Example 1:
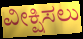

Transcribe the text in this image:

ವೀಕ್ಷಿಸಲು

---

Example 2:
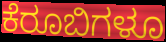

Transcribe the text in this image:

ಕೆರೂಬಿಗಳೂ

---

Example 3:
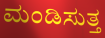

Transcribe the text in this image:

ಮಂಡಿಸುತ್ತ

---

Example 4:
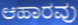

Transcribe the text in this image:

ಆಹಾರವು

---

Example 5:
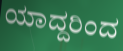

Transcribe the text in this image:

ಯಾದ್ದರಿಂದ